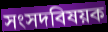
সংসদবিষয়ক